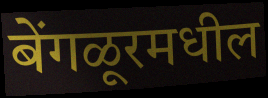
बेंगळूरमधील